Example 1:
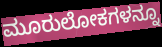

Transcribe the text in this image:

ಮೂರುಲೋಕಗಳನ್ನೂ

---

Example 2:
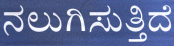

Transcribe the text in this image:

ನಲುಗಿಸುತ್ತಿದೆ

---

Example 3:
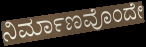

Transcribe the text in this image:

ನಿರ್ಮಾಣವೊಂದೇ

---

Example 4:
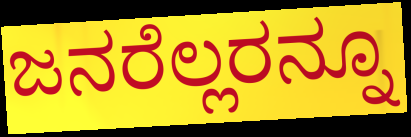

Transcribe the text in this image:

ಜನರೆಲ್ಲರನ್ನೂ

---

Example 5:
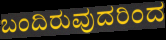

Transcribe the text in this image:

ಬಂದಿರುವುದರಿಂದ